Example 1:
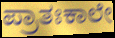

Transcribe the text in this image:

ಪ್ರಾತಃಕಾಲೇ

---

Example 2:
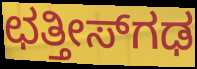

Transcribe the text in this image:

ಛತ್ತೀಸ್‌ಗಢ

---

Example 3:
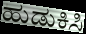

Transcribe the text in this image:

ಹುಡುಕಿಸಿ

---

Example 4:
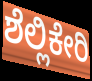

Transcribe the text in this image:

ಶೆಲ್ಲಿಕೇರಿ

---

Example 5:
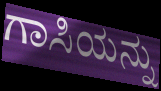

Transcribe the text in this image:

ಗಾಸಿಯನ್ನು